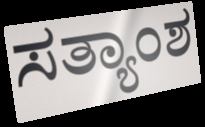
ಸತ್ಯಾಂಶ